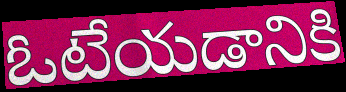
ఓటేయడానికి